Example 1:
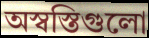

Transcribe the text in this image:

অস্বস্তিগুলো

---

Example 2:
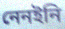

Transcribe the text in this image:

নেনইনি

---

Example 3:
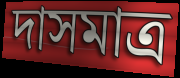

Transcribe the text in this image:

দাসমাত্র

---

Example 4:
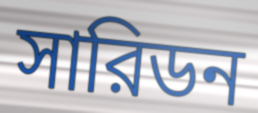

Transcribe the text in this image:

সারিডন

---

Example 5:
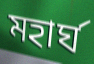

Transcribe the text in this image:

মহার্ঘ